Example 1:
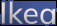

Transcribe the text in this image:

Ikea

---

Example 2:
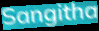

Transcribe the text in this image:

Sangitha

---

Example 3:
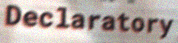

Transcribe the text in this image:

Declaratory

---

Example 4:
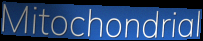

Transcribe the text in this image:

Mitochondrial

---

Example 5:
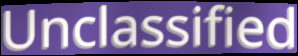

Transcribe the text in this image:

Unclassified